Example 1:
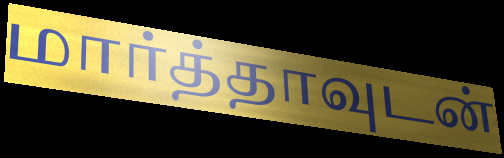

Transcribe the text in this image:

மார்த்தாவுடன்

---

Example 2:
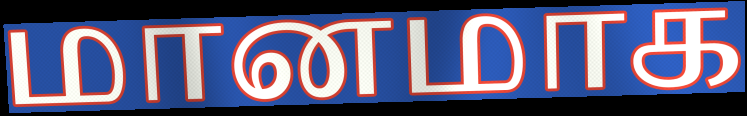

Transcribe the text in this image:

மானமாக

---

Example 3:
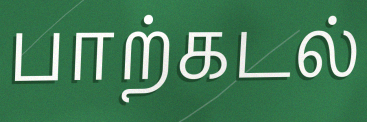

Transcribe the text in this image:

பாற்கடல்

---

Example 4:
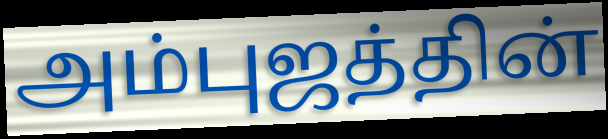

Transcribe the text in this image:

அம்புஜத்தின்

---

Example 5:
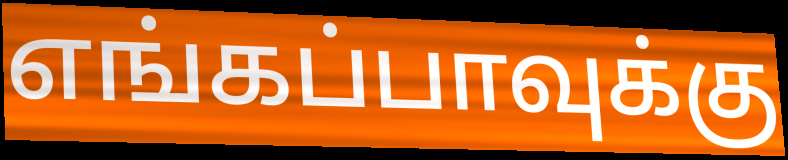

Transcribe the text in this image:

எங்கப்பாவுக்கு